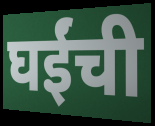
घईंची